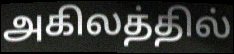
அகிலத்தில்